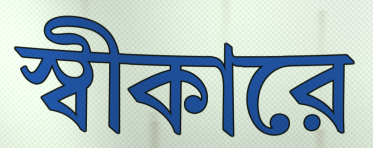
স্বীকারে